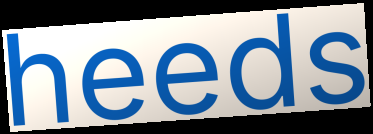
heeds